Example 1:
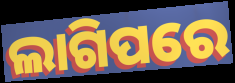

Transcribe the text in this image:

ଲାଗିପରେ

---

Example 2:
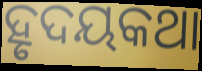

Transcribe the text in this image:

ହୃଦୟକଥା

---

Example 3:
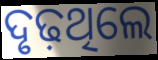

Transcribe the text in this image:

ଦୃଢ଼ଥିଲେ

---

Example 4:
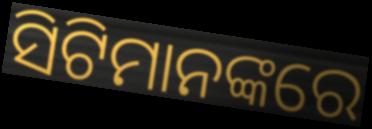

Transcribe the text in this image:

ସିଟିମାନଙ୍କରେ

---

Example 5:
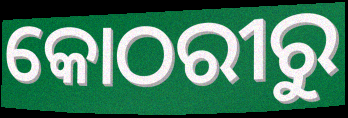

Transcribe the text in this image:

କୋଠରୀରୁ